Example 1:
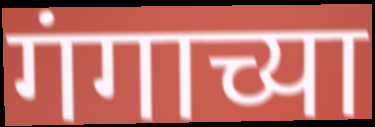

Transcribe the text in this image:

गंगाच्या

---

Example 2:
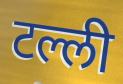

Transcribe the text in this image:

टल्ली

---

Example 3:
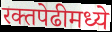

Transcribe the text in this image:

रक्तपेढीमध्ये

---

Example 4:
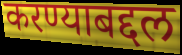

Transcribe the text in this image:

करण्याबद्दल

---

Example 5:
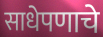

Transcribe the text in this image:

साधेपणाचे